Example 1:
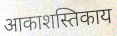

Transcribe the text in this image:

आकाशस्तिकाय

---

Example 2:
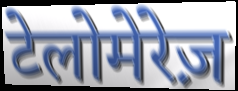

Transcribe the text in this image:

टेलोमेरेज़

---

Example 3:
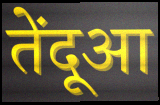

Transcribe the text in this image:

तेंदूआ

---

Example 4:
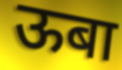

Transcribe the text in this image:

ऊबा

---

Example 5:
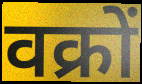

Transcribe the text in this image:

वक्रों